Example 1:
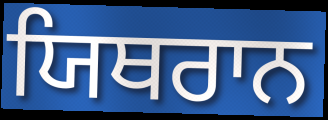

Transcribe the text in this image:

ਯਿਥਰਾਨ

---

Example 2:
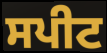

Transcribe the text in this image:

ਸਪੀਟ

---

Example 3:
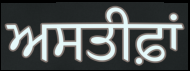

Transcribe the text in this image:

ਅਸਤੀਫ਼ਾਂ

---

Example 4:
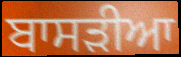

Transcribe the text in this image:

ਬਾਸੜੀਆ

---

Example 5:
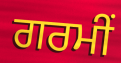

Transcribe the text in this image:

ਗਰਮੀਂ